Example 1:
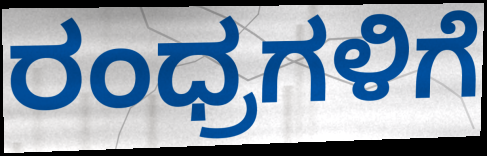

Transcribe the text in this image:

ರಂಧ್ರಗಳಿಗೆ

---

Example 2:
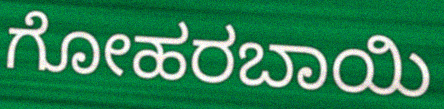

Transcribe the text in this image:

ಗೋಹರಬಾಯಿ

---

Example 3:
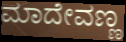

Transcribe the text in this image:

ಮಾದೇವಣ್ಣ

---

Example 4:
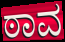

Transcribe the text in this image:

ಠಾವ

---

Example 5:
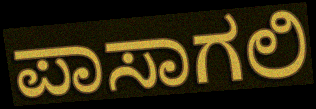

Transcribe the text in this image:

ಪಾಸಾಗಲಿ